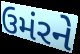
ઉમંરને